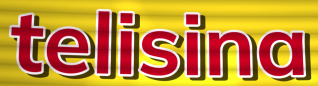
telisina